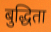
बुद्धिता